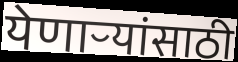
येणाऱ्यांसाठी